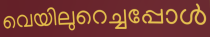
വെയിലുറെച്ചപ്പോൾ